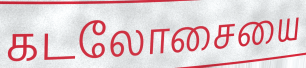
கடலோசையை